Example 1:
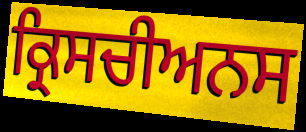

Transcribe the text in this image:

ਕ੍ਰਿਸਚੀਅਨਸ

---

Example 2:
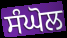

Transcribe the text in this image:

ਸੰਘੋਲ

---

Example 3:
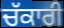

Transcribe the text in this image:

ਚੱਕਾਰੀ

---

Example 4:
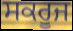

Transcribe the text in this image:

ਸਕਰੂਜ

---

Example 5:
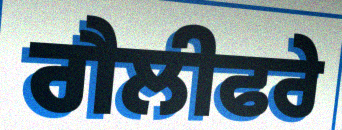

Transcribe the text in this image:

ਗੈਲੀਫਰੇ